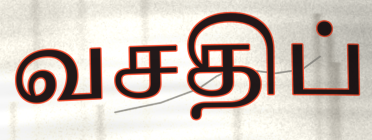
வசதிப்